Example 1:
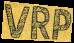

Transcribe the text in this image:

VRP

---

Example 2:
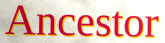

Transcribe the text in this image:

Ancestor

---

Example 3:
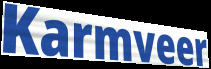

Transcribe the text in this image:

Karmveer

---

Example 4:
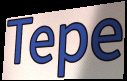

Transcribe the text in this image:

Tepe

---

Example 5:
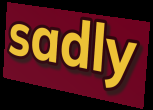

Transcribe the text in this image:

sadly